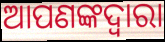
ଆପଣଙ୍କଦ୍ବାରା